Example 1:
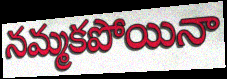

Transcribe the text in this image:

నమ్మకపోయినా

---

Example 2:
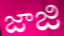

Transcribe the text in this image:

జాజి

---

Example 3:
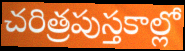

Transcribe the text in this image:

చరిత్రపుస్తకాల్లో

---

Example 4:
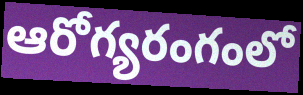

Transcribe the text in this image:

ఆరోగ్యరంగంలో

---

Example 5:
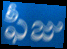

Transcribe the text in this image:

ఫీజు